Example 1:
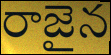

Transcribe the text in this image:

రాజైన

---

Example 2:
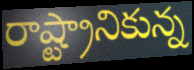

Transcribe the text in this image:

రాష్ట్రానికున్న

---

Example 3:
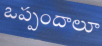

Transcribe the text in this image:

ఒప్పందాలూ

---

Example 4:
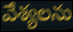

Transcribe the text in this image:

వేశ్యలను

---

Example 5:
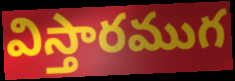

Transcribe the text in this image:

విస్తారముగ